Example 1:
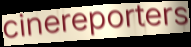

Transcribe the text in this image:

cinereporters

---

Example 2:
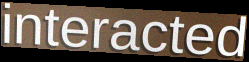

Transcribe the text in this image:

interacted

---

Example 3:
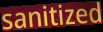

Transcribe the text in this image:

sanitized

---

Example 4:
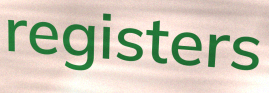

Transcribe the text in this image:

registers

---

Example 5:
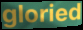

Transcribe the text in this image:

gloried